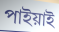
পাইয়াই